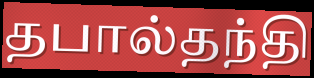
தபால்தந்தி